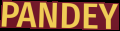
PANDEY